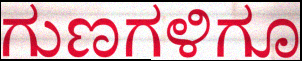
ಗುಣಗಳಿಗೂ